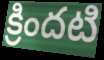
క్రిందటి